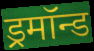
ड्रमॉन्ड